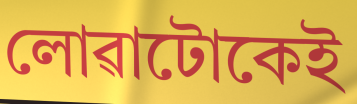
লোৱাটোকেই